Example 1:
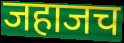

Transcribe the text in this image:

जहाजच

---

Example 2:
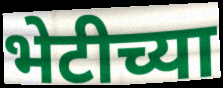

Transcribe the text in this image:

भेटीच्या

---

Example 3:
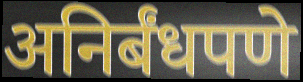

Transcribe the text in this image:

अनिर्बंधपणे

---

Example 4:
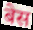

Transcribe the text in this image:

बेस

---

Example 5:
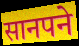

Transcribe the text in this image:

सानपने